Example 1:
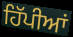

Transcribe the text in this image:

ਹਿੱਪੀਆਂ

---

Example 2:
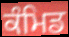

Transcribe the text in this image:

ਕੰਮਿਡ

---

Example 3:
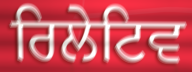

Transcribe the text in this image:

ਰਿਲੇਟਿਵ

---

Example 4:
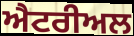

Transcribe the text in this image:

ਐਟਰੀਅਲ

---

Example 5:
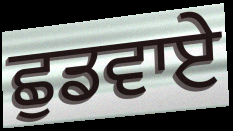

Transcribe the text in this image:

ਛੁਡਵਾਏ